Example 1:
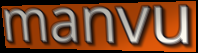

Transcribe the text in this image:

manvu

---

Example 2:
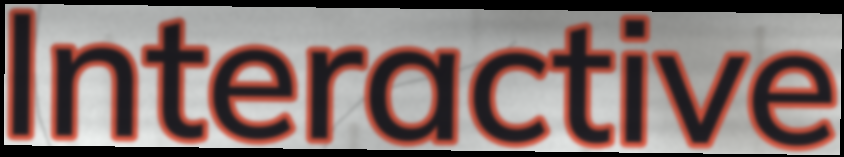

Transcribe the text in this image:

Interactive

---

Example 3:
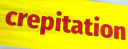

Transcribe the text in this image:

crepitation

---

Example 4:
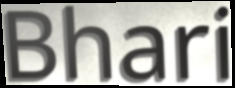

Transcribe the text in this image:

Bhari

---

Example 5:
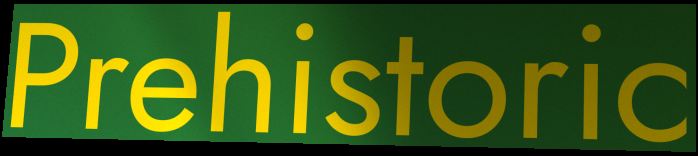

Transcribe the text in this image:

Prehistoric